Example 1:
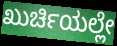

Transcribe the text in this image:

ಖುರ್ಚಿಯಲ್ಲೇ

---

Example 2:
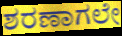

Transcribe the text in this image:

ಶರಣಾಗಲೇ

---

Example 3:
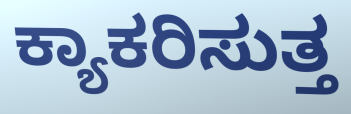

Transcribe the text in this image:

ಕ್ಯಾಕರಿಸುತ್ತ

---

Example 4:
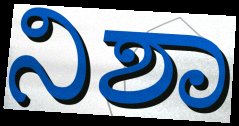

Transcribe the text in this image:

ನಿಶಾ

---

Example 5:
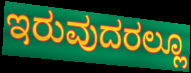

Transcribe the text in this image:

ಇರುವುದರಲ್ಲೂ